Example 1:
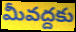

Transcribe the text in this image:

మీవద్దకు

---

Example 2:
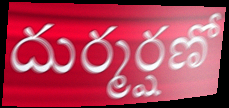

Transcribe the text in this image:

దుర్మర్షణో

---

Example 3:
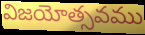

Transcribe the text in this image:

విజయోత్సవము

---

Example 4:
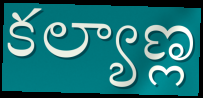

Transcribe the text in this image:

కల్యాణ్ల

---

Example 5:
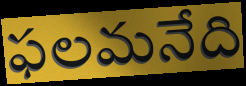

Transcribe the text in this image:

ఫలమనేది